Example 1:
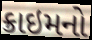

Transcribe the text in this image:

ક્રાઇમનો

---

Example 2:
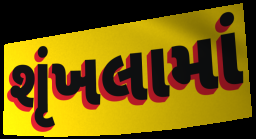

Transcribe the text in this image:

શૃંખલામાં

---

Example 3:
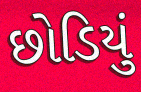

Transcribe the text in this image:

છોડિયું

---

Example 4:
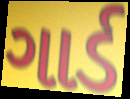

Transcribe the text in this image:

ગાર્ડ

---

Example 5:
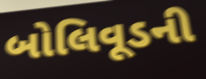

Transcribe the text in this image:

બોલિવૂડની